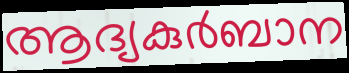
ആദ്യകുർബാന